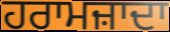
ਹਰਾਮਜ਼ਾਦਾ